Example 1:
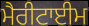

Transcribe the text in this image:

ਮੈਰੀਟਾਈਮ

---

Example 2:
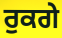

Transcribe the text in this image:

ਰੁਕਗੇ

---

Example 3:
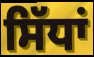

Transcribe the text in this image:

ਸਿੱਧਾਂ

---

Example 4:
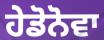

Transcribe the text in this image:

ਹੇਡੋਨੋਵਾ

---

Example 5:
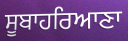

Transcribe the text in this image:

ਸੂਬਾਹਰਿਆਣਾ